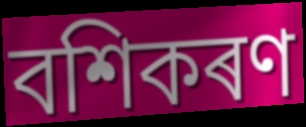
বশিকৰণ